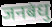
जनबंधु